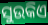
ସୁଉକିଏ